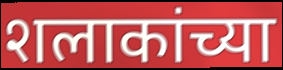
शलाकांच्या